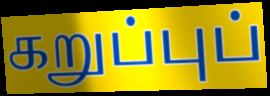
கறுப்புப்